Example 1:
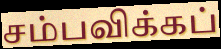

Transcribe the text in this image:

சம்பவிக்கப்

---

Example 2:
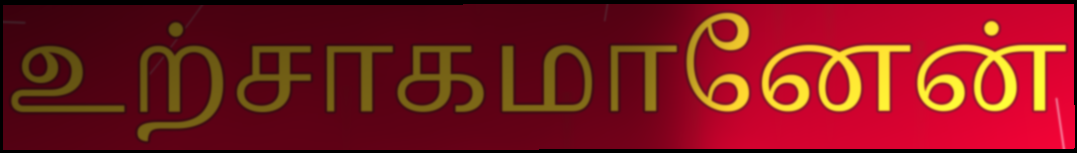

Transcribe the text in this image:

உற்சாகமானேன்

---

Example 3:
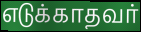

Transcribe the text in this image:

எடுக்காதவர்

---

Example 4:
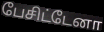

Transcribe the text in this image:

பேசிட்டேனா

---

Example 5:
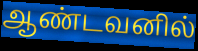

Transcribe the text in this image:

ஆண்டவனில்